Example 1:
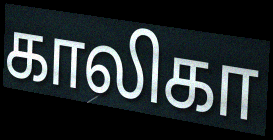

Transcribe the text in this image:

காலிகா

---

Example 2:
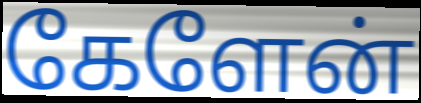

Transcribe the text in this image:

கேளேன்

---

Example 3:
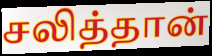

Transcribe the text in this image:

சலித்தான்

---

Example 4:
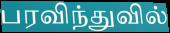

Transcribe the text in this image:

பரவிந்துவில்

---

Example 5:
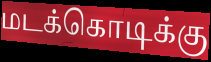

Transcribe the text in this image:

மடக்கொடிக்கு